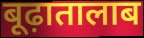
बूढ़ातालाब